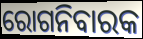
ରୋଗନିବାରକ